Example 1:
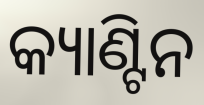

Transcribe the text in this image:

କ୍ୟାଣ୍ଟିନ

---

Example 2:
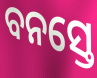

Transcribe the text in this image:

ବନସ୍ତେ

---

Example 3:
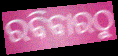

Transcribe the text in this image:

ରବିବାରଠୁ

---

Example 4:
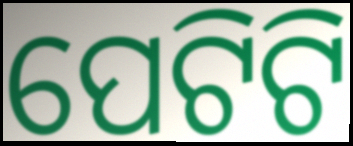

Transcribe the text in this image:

ପେଟିଟି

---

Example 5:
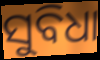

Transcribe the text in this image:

ସୁବିଧା